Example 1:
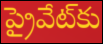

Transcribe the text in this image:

ప్రైవేట్‌కు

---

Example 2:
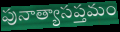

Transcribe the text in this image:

పునాత్యాసప్తమం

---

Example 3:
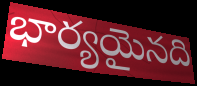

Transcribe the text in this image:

భార్యయైనది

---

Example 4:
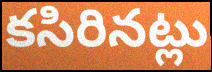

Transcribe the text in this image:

కసిరినట్లు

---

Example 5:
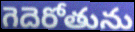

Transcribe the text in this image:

గెదెరోతును